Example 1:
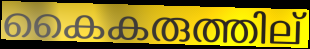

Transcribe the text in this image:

കൈകരുത്തില്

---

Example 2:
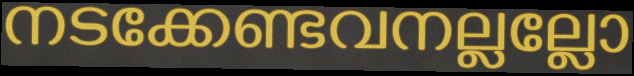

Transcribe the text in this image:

നടക്കേണ്ടവനല്ലല്ലോ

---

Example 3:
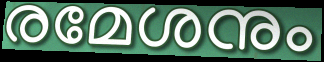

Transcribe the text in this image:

രമേശനും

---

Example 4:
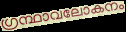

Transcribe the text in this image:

ഗ്രന്ഥാവലോകനം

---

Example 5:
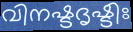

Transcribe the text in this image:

വിനഷ്ടദൃഷ്ടിഃ